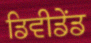
ਡਿਵੀਡੇਂਡ